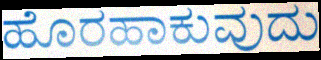
ಹೊರಹಾಕುವುದು